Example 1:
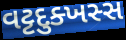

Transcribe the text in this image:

વટ્ટદુક્ખસ્સ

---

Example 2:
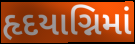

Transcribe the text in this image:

હૃદયાગ્નિમાં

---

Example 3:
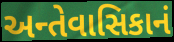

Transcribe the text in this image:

અન્તેવાસિકાનં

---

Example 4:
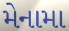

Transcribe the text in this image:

મેનામા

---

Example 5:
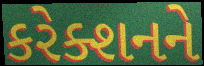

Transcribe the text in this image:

કરેક્શનને